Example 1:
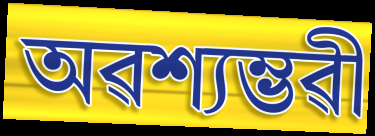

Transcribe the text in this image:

অৱশ্যম্ভৱী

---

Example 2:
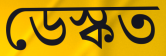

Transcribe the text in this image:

ডেস্কত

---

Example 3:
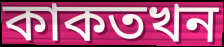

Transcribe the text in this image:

কাকতখন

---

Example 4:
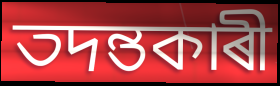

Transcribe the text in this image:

তদন্তকাৰী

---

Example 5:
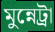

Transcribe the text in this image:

মুন্নেট্ৰা